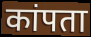
कांपता